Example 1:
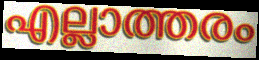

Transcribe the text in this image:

എല്ലാത്തരം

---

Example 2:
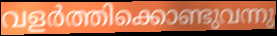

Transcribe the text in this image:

വളർത്തിക്കൊണ്ടുവന്നു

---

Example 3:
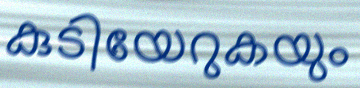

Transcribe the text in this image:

കുടിയേറുകയും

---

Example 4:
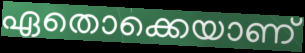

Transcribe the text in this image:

ഏതൊക്കെയാണ്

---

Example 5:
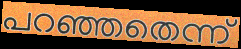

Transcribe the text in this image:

പറഞ്ഞതെന്ന്